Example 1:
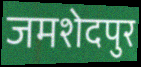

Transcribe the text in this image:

जमशेदपुर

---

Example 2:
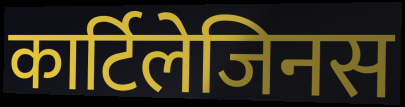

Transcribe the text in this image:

कार्टिलेजिनस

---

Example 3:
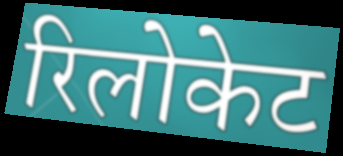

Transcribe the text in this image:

रिलोकेट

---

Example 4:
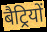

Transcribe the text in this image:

बैट्रियों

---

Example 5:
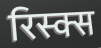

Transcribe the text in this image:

रिस्क्स